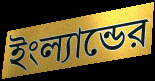
ইংল্যান্ডের